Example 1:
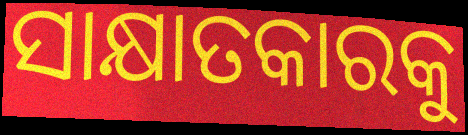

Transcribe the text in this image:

ସାକ୍ଷାତକାରକୁ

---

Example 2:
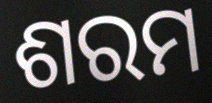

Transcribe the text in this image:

ଶରମ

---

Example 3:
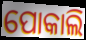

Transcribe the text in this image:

ପୋକାଲି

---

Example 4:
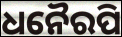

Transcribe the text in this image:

ଧନୈରପି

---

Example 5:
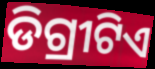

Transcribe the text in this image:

ଡିଗ୍ରୀଟିଏ